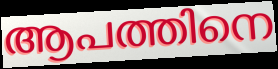
ആപത്തിനെ